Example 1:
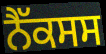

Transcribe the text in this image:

ਨੈੱਕਸਸ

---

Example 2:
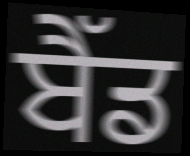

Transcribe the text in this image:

ਬੈੱਡ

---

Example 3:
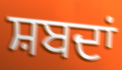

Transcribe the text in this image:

ਸ਼ਬਦਾਂ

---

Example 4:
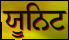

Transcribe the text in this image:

ਯੂਨਿਟ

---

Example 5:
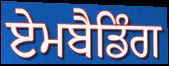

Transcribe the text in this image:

ਏਮਬੈਡਿੰਗ